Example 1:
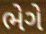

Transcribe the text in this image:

ભેગે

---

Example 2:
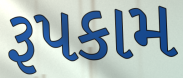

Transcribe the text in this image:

રૂપકામ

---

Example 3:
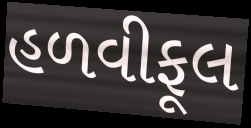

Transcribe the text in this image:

હળવીફૂલ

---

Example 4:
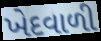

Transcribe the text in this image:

ખેદવાળી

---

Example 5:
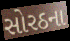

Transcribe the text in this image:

સોરઠના